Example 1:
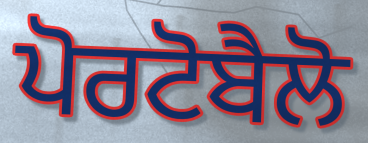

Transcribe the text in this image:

ਪੋਰਟੋਬੈਲੋ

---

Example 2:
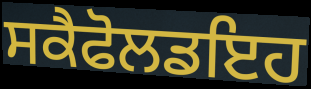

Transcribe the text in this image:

ਸਕੈਫੋਲਡਇਹ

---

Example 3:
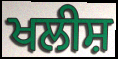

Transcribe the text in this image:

ਖਲੀਸ਼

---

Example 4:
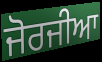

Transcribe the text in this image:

ਜੋਰਜੀਆ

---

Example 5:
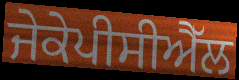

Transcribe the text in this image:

ਜੇਕੇਪੀਸੀਐੱਲ